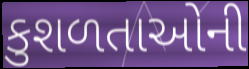
કુશળતાઓની